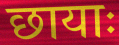
छायाः